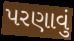
પરણાવું